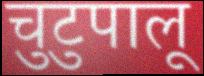
चुटुपालू